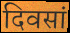
दिवसां